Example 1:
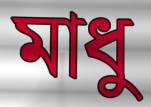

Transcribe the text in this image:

মাধু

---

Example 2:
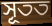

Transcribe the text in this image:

সূতত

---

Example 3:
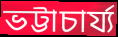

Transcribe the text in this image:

ভট্টাচাৰ্য্য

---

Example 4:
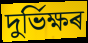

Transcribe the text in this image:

দুৰ্ভিক্ষৰ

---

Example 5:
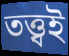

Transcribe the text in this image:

তত্ত্বই